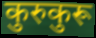
कुरुकुरू